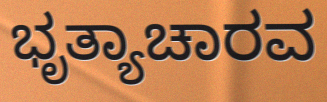
ಭೃತ್ಯಾಚಾರವ